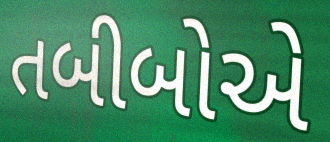
તબીબોએ